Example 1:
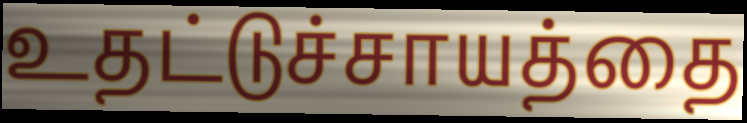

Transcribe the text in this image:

உதட்டுச்சாயத்தை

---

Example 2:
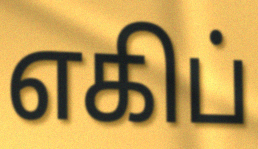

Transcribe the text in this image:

எகிப்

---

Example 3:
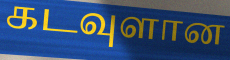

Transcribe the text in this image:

கடவுளான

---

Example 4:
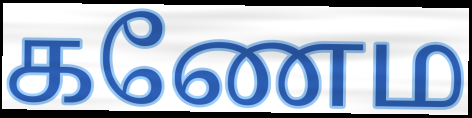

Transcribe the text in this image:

கணேம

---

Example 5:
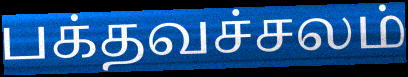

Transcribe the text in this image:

பக்தவச்சலம்